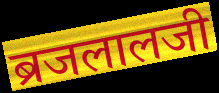
ब्रजलालजी